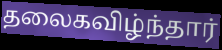
தலைகவிழ்ந்தார்